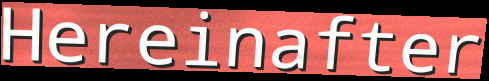
Hereinafter